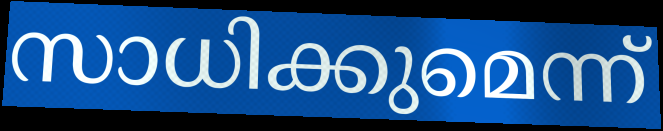
സാധിക്കുമെന്ന്